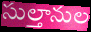
సుల్తానుల